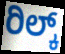
ರಿಲ್ಕ್